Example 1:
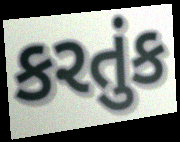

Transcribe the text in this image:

કરતુંક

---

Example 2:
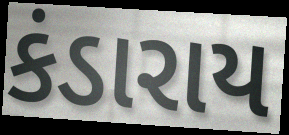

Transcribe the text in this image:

કંડારાય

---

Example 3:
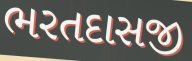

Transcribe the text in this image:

ભરતદાસજી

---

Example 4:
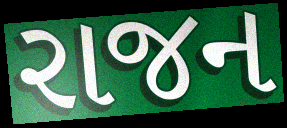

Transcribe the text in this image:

રાજન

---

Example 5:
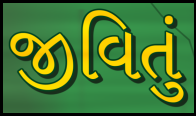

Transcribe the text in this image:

જીવિતું